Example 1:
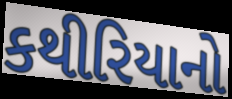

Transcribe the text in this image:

કથીરિયાનો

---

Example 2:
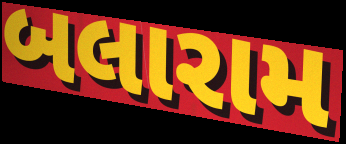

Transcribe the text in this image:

બલારામ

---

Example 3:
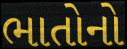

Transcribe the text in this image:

ભાતોનો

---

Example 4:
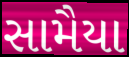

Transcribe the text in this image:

સામૈયા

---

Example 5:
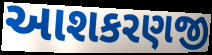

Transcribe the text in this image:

આશકરણજી